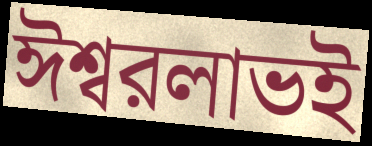
ঈশ্বরলাভই